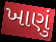
ખાણું